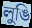
লুঙি